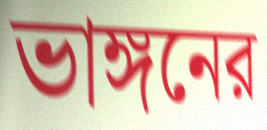
ভাঙ্গনের